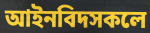
আইনবিদসকলে